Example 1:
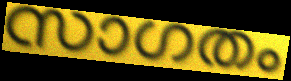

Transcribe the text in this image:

സാഗതം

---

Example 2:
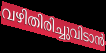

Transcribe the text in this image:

വഴിതിരിച്ചുവിടാൻ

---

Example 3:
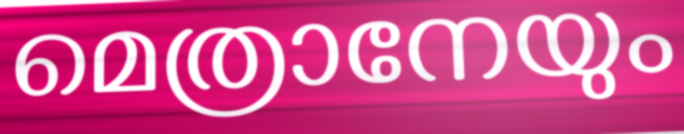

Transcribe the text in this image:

മെത്രാനേയും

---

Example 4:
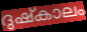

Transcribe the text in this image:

ദുഷ്കാലം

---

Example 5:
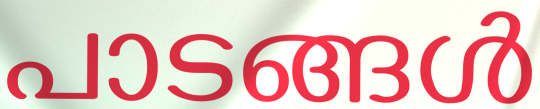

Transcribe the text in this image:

പാടങ്ങൾ